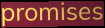
promises